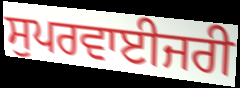
ਸੁਪਰਵਾਈਜਰੀ